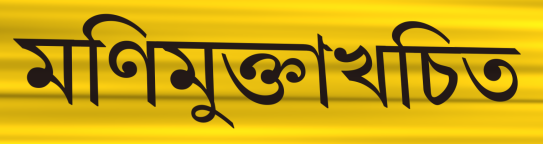
মণিমুক্তাখচিত